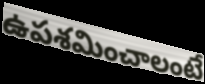
ఉపశమించాలంటే